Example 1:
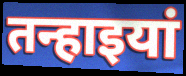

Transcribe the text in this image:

तन्हाइयां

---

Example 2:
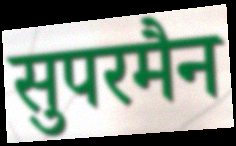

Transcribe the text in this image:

सुपरमैन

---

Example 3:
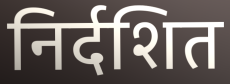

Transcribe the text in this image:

निर्दशित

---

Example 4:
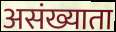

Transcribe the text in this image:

असंख्याता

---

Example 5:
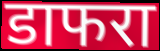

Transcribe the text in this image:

डाफरा